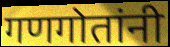
गणगोतांनी